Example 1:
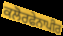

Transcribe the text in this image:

ਕਲੋਰਫੇਨਾਪੀਰ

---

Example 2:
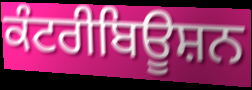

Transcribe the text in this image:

ਕੰਟਰੀਬਿਊਸ਼ਨ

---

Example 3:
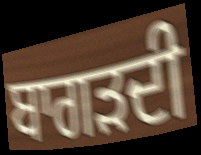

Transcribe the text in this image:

ਬਾਗੜਦੀ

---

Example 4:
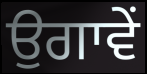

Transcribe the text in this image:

ਉਗਾਵੇਂ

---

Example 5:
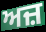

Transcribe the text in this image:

ਅਜ਼